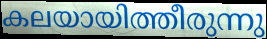
കലയായിത്തീരുന്നു